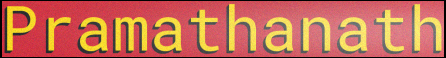
Pramathanath